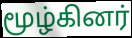
மூழ்கினர்